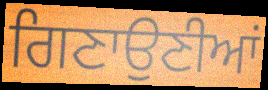
ਗਿਣਾਉਣੀਆਂ